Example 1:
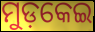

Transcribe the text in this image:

ମୁଡ଼କେଇ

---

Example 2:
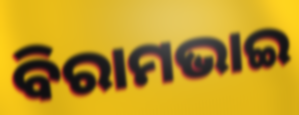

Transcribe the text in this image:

ବିରାମଭାଇ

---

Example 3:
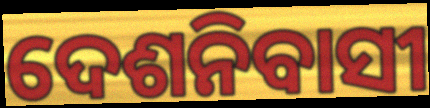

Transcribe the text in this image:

ଦେଶନିବାସୀ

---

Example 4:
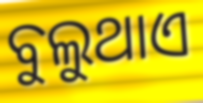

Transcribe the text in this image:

ବୁଲୁଥାଏ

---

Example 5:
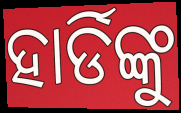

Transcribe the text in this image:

ହାର୍ଡିଙ୍କୁ